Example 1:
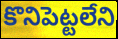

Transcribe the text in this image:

కొనిపెట్టలేని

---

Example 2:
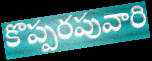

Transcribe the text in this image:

కొప్పరపువారి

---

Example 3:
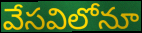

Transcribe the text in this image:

వేసవిలోనూ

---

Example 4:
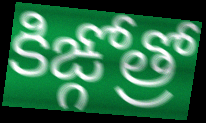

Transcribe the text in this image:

కిఙ్గోత్రో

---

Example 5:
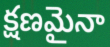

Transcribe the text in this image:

క్షణమైనా